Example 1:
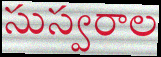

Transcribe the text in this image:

సుస్వరాల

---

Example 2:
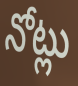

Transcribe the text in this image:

నోట్లు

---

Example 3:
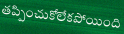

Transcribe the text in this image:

తప్పించుకోలేకపోయింది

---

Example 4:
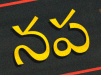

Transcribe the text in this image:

నప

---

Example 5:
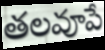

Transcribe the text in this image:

తలవూపే